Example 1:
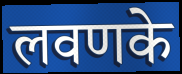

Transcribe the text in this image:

लवणके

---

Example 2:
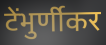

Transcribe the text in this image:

टेंभुर्णीकर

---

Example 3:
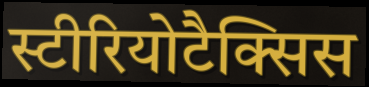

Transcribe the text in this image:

स्टीरियोटैक्सिस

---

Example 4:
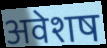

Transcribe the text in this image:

अवेशष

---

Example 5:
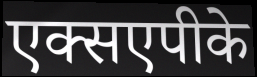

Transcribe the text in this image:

एक्सएपीके